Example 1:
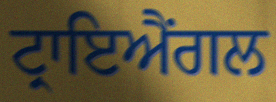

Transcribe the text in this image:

ਟ੍ਰਾਇਐਂਗਲ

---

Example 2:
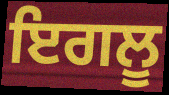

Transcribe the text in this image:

ਇਗਲੂ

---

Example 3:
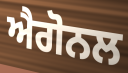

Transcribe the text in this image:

ਐਗੋਨਲ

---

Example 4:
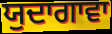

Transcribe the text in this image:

ਯੁਦਾਗਾਵਾ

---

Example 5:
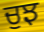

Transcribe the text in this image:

ਚੁਝ